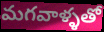
మగవాళ్ళతో